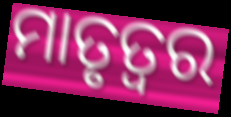
ମାତୃତ୍ୱର